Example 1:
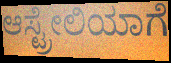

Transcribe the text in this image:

ಆಸ್ಟ್ರೇಲಿಯಾಗೆ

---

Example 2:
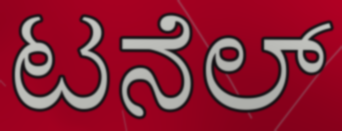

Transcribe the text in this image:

ಟನೆಲ್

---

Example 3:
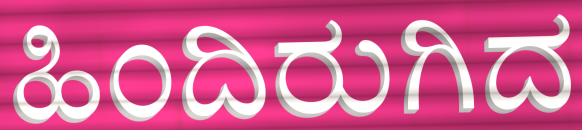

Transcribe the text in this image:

ಹಿಂದಿರುಗಿದ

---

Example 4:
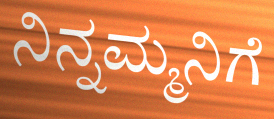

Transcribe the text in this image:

ನಿನ್ನಮ್ಮನಿಗೆ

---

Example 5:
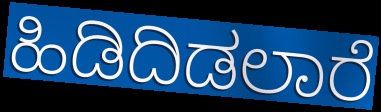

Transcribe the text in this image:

ಹಿಡಿದಿಡಲಾರೆ